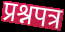
प्रश्नपत्र